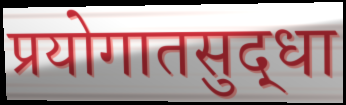
प्रयोगातसुद्धा